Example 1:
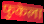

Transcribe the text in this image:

फुकेला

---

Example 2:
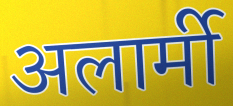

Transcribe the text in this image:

अलार्मी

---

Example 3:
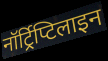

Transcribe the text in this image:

नॉर्ट्रिप्टिलाइन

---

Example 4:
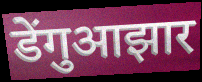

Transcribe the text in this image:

डेंगुआझार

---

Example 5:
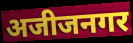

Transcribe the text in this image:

अजीजनगर